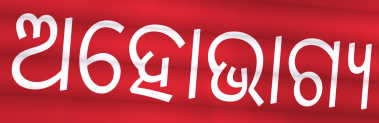
ଅହୋଭାଗ୍ୟ